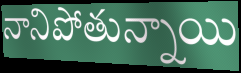
నానిపోతున్నాయి